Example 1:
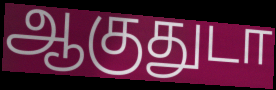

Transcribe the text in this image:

ஆகுதுடா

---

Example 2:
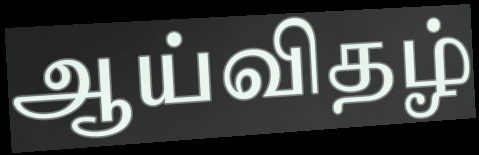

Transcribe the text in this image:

ஆய்விதழ்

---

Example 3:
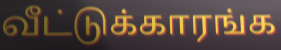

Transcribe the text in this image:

வீட்டுக்காரங்க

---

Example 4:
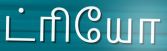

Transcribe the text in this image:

ட்ரியோ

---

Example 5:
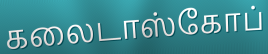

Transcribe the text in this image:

கலைடாஸ்கோப்